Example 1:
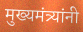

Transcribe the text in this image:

मुख्यमंत्र्यांनी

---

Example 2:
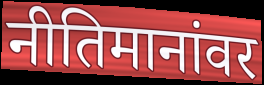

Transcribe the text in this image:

नीतिमानांवर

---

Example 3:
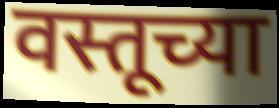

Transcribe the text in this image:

वस्तूच्या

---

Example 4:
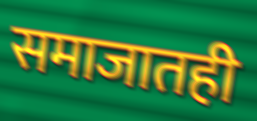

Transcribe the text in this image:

समाजातही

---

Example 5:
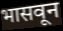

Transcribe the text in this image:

भासवून